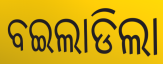
ବଇଲାଡିଲା